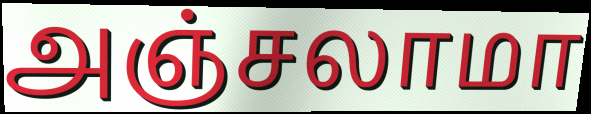
அஞ்சலாமா